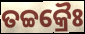
ତଚ୍ଚକ୍ରୈଃ